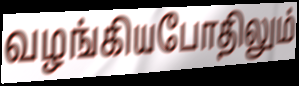
வழங்கியபோதிலும்